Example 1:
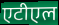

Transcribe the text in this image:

एटीएल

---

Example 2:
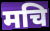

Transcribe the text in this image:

मचि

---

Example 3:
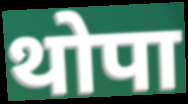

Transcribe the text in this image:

थोपा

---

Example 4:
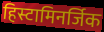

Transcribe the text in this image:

हिस्टामिनर्जिक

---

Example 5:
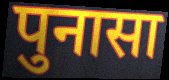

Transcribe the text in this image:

पुनासा